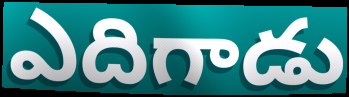
ఎదిగాడు